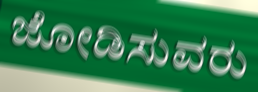
ಜೋಡಿಸುವರು